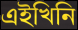
এইখিনি